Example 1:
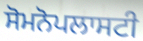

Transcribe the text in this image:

ਸੋਮਨੋਪਲਾਸਟੀ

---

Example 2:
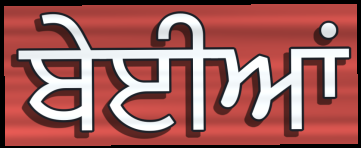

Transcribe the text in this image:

ਬੇਈਆਂ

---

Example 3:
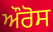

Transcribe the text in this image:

ਔਰੋਸ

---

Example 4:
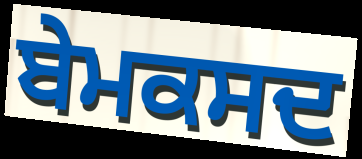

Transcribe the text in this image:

ਬੇਮਕਸਦ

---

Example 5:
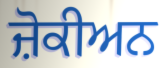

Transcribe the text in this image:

ਜ਼ੋਕੀਅਨ